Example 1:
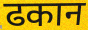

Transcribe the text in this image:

ढकान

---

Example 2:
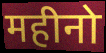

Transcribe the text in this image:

महीनो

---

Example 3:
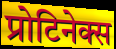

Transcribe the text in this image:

प्रोटिनेक्स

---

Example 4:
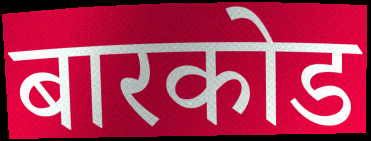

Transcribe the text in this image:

बारकोड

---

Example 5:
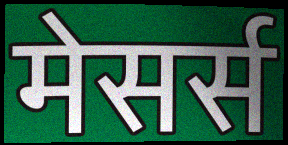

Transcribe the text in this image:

मेसर्स